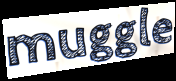
muggle